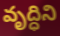
వృద్ధిని